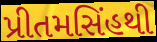
પ્રીતમસિંહથી